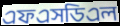
এফএসডিএল